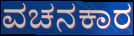
ವಚನಕಾರ